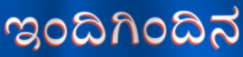
ಇಂದಿಗಿಂದಿನ